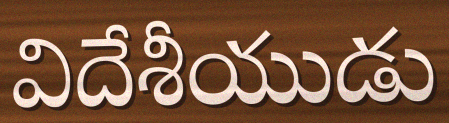
విదేశీయుడు